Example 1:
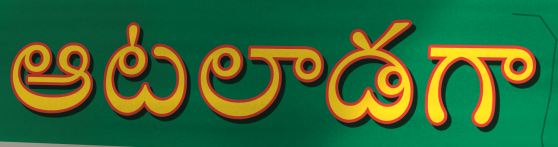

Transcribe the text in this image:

ఆటలాడగా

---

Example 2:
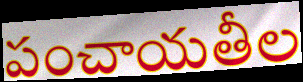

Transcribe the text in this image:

పంచాయతీల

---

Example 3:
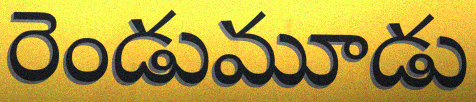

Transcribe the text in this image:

రెండుమూడు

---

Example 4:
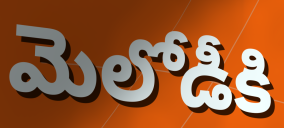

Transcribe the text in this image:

మెలోడీకి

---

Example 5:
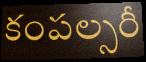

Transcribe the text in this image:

కంపల్సరీ